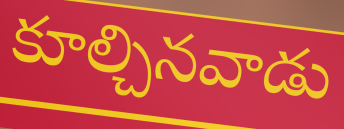
కూల్చినవాడు